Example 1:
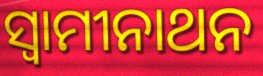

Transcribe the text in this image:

ସ୍ୱାମୀନାଥନ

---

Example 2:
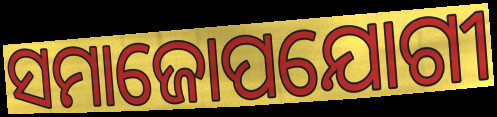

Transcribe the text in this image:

ସମାଜୋପଯୋଗୀ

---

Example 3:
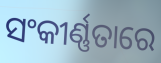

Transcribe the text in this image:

ସଂକୀର୍ଣ୍ଣତାରେ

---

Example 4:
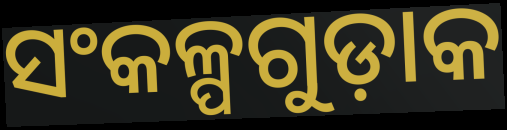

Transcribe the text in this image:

ସଂକଳ୍ପଗୁଡ଼ାକ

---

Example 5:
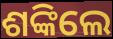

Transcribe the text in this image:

ଶଙ୍କିଲେ